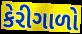
કેરીગાળો